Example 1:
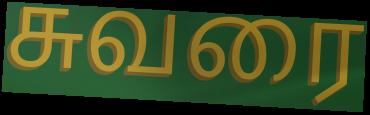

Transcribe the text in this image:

சுவரை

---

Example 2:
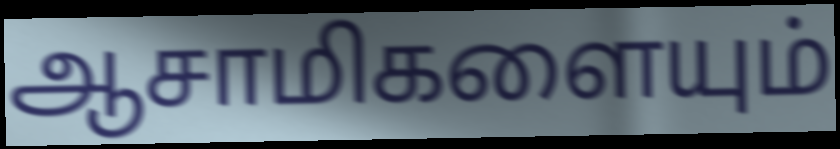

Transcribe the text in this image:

ஆசாமிகளையும்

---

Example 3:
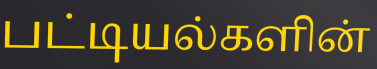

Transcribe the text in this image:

பட்டியல்களின்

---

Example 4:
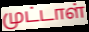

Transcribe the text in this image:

முட்டாள்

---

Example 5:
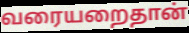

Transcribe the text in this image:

வரையறைதான்